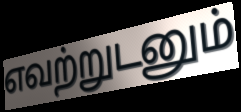
எவற்றுடனும்